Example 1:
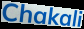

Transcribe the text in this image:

Chakali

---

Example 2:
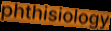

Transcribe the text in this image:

phthisiology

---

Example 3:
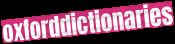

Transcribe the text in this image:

oxforddictionaries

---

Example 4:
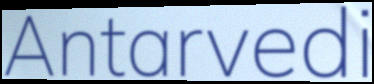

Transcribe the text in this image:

Antarvedi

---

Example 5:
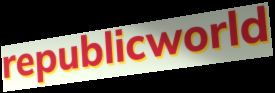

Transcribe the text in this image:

republicworld